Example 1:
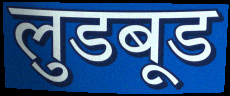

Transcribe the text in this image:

लुडबूड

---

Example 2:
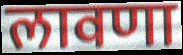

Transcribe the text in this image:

लावणा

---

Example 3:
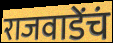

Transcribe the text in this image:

राजवाडेंचं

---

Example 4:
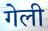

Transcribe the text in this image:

गेली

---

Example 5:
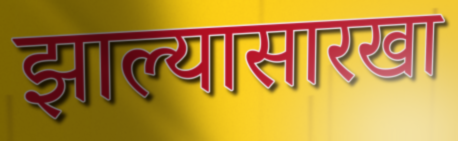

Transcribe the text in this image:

झाल्यासारखा